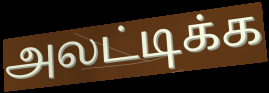
அலட்டிக்க